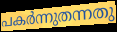
പകർന്നുതന്നതു